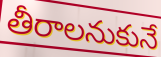
తీరాలనుకునే